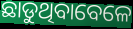
ଛାଡୁଥିବାବେଳେ